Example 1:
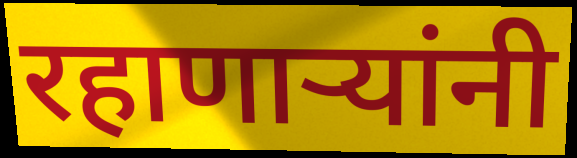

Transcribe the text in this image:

रहाणार्‍यांनी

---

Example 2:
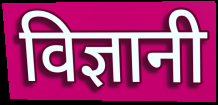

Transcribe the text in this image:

विज्ञानी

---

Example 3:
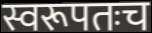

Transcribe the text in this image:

स्वरूपतःच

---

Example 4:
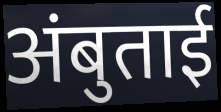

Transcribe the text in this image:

अंबुताई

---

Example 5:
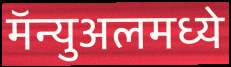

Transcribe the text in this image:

मॅन्युअलमध्ये